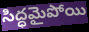
సిద్ధమైపోయి